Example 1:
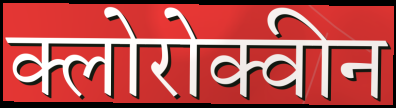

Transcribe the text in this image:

क्लोरोक्वीन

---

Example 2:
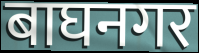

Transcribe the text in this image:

बाघनगर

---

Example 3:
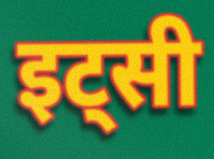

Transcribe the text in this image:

इट्सी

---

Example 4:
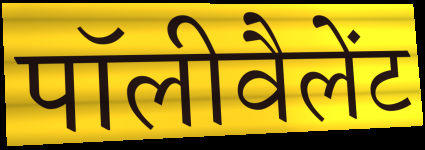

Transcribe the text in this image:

पॉलीवैलेंट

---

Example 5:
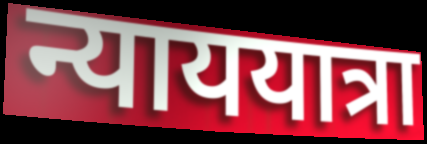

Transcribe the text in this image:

न्याययात्रा